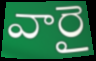
వారై